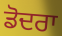
ਡੋਦਰਾ